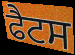
ਫੈਟਸ